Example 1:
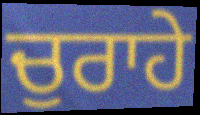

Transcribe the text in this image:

ਚੁਰਾਹੇ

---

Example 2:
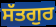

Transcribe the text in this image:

ਸੱਤਗੁਰ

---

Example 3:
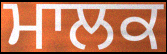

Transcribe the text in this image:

ਮਾਲਕ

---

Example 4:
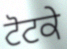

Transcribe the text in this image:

ਟੋਟਕੇ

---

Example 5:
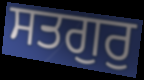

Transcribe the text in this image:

ਸਤਗੁਰੁ